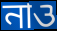
নাও